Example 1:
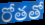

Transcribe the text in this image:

రోతతో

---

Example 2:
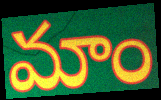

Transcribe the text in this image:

మాం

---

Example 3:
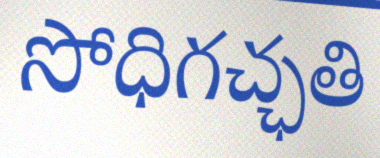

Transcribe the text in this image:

సోధిగచ్ఛతి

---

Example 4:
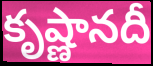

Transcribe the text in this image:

కృష్ణానదీ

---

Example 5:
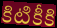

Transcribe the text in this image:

కిటికీకి